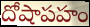
దోషాపహం